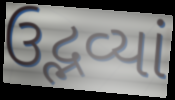
ઉદ્ભવ્યાં